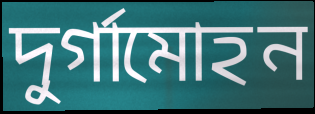
দুর্গামোহন